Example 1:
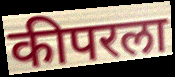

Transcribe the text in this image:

कीपरला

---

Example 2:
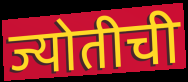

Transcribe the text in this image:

ज्योतीची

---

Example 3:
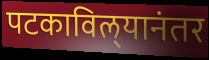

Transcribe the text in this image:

पटकाविल्यानंतर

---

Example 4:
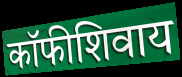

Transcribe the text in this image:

कॉफीशिवाय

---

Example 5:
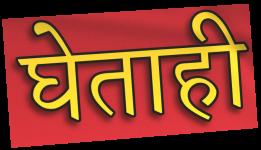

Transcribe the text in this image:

घेताही